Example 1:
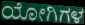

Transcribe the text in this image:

ಯೋಗಿಗಳ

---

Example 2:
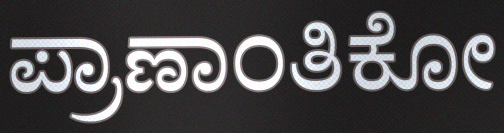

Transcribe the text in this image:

ಪ್ರಾಣಾಂತಿಕೋ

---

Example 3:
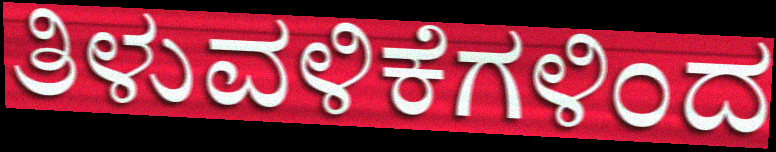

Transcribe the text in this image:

ತಿಳುವಳಿಕೆಗಳಿಂದ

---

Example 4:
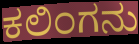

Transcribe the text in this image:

ಕಲಿಂಗನು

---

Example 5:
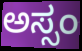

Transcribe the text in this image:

ಅಸ್ಸಂ